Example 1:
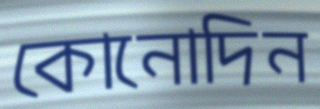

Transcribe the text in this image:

কোনোদিন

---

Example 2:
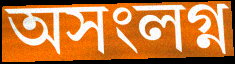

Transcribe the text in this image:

অসংলগ্ন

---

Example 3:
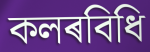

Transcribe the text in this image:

কলৰবিধি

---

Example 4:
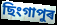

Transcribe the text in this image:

ছিংগাপুৰ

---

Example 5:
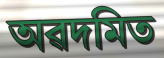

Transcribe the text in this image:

অৱদমিত